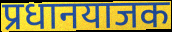
प्रधानयाजक